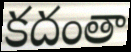
కదంతా